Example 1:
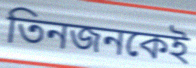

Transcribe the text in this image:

তিনজনকেই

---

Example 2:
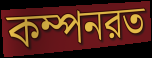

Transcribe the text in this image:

কম্পনরত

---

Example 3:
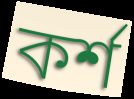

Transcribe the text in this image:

কর্শ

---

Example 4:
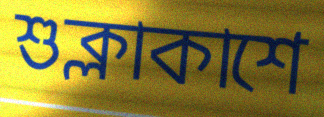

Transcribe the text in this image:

শুক্লাকাশে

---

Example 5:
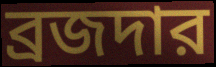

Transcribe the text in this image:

ব্রজদার